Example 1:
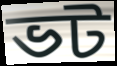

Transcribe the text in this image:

ভট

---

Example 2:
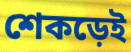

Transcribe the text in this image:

শেকড়েই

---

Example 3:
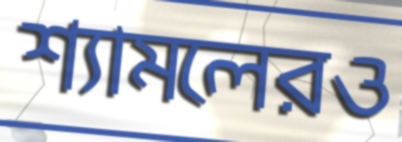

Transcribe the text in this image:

শ্যামলেরও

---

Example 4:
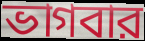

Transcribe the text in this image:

ভাগবার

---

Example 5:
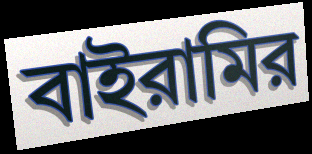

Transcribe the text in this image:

বাইরামির